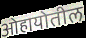
ओहायोतील